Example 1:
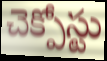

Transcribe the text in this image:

చెక్పోస్టు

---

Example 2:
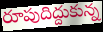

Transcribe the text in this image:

రూపుదిద్దుకున్న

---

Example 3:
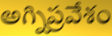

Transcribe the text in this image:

అగ్నిప్రవేశం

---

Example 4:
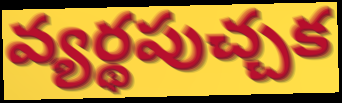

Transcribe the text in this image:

వ్యర్థపుచ్చక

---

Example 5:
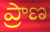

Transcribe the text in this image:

ప్రాణ